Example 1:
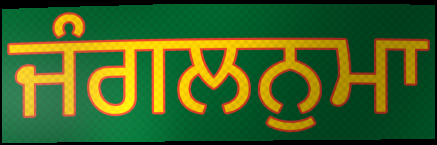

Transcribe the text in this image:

ਜੰਗਲਨੁਮਾ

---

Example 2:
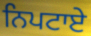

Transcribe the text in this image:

ਨਿਪਟਾਏ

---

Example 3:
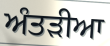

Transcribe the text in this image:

ਅੰਤੜੀਆ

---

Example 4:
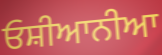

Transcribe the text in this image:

ਓਸ਼ੀਆਨੀਆ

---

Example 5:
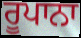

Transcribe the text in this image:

ਰੂਪਾਨਾ